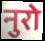
नुरो